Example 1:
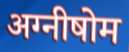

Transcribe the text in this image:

अग्नीषोम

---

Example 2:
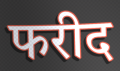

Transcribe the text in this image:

फरीद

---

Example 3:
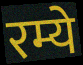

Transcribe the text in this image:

रम्ये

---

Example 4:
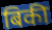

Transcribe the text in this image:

बिकी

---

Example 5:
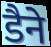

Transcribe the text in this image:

डैने